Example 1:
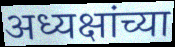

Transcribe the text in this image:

अध्यक्षांच्या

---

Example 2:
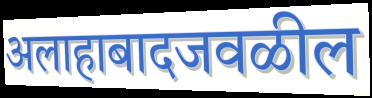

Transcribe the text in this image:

अलाहाबादजवळील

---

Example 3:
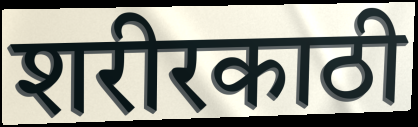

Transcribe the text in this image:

शरीरकाठी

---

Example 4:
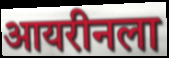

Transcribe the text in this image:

आयरीनला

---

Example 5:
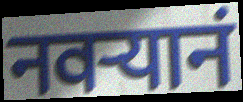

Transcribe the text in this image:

नवर्‍यानं